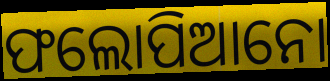
ଫଲୋପିଆନୋ